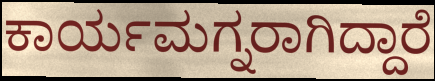
ಕಾರ್ಯಮಗ್ನರಾಗಿದ್ದಾರೆ